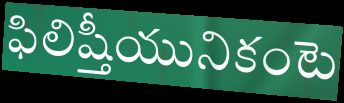
ఫిలిష్తీయునికంటె